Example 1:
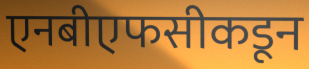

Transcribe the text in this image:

एनबीएफसीकडून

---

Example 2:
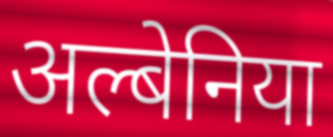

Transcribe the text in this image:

अल्बेनिया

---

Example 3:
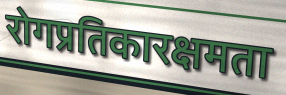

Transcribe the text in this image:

रोगप्रतिकारक्षमता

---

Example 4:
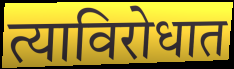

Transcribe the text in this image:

त्याविरोधात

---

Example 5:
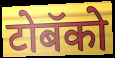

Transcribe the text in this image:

टोबॅको